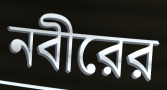
নবীরের